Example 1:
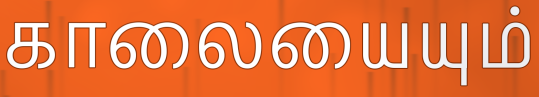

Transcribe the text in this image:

காலையையும்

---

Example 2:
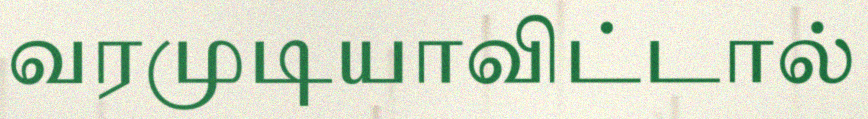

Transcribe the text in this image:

வரமுடியாவிட்டால்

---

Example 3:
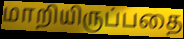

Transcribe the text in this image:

மாறியிருப்பதை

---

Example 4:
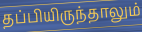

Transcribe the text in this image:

தப்பியிருந்தாலும்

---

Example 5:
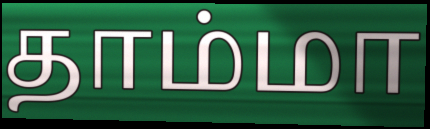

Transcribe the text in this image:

தாம்மா